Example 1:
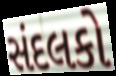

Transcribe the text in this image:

સંદલકો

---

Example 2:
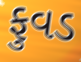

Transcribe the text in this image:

ફુવડ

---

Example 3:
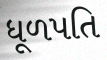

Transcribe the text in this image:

ધૂળપતિ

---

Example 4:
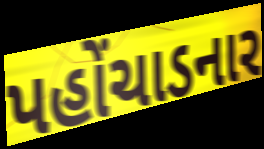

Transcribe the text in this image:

પહોંચાડનાર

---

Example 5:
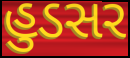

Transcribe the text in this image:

હુડસર